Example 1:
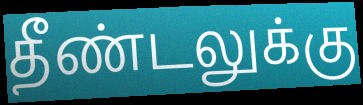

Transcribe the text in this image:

தீண்டலுக்கு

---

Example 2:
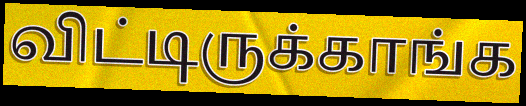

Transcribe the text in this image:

விட்டிருக்காங்க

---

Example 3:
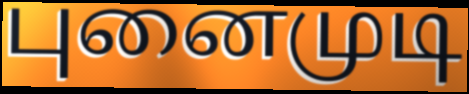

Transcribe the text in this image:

புனைமுடி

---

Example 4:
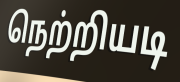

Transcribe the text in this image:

நெற்றியடி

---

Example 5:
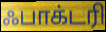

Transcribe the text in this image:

ஃபாக்டரி